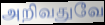
அறிவதுவே